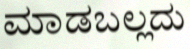
ಮಾಡಬಲ್ಲದು